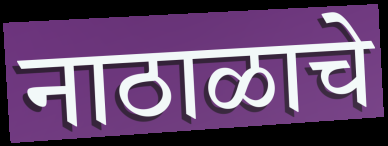
नाठाळाचे